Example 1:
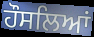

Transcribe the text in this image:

ਹੌਸਲਿਆਂ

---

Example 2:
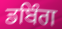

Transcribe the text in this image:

ਡਬਿੰਗ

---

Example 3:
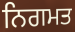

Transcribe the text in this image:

ਨਿਗਮਤ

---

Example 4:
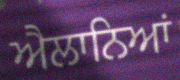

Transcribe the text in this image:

ਐਲਾਨਿਆਂ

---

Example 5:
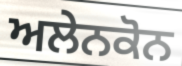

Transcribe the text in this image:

ਅਲੇਨਕੋਨ